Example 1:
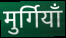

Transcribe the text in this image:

मुर्गियाँ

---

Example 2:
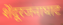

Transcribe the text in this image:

शेंदूरजनाघाट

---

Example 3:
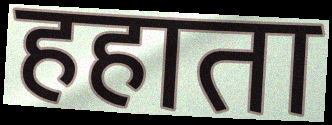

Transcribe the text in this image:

हहाता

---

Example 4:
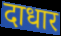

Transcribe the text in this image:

दाधार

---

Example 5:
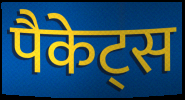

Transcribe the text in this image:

पैकेट्स